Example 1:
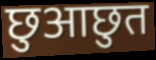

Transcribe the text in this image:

छुआछुत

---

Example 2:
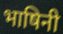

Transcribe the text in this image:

भाषिनी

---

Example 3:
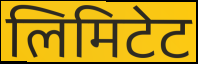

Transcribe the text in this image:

लिमिटेट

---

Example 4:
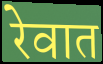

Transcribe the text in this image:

रेवात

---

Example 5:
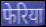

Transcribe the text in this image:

फेरिया